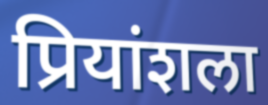
प्रियांशला